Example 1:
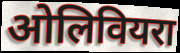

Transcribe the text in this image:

ओलिवियरा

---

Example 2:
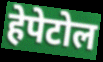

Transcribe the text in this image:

हेपेटोल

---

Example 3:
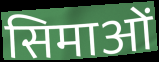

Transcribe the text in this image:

सिमाओं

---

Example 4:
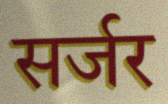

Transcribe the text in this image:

सर्जर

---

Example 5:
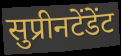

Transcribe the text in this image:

सुप्रीनटेंडेंट